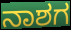
ನಾಶಗ